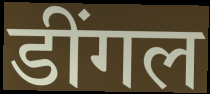
डींगल